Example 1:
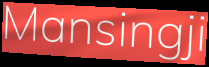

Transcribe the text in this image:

Mansingji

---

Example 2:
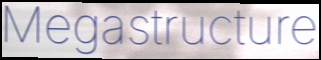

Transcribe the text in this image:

Megastructure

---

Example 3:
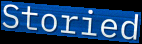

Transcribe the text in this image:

Storied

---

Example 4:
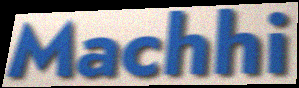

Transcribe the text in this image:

Machhi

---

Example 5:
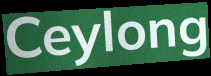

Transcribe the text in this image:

Ceylong